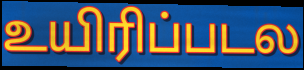
உயிரிப்படல